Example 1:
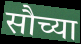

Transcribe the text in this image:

सौच्या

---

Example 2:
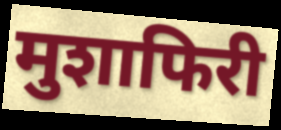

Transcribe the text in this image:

मुशाफिरी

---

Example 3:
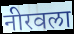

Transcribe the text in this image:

नीरवला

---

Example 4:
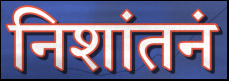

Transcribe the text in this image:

निशांतनं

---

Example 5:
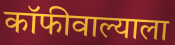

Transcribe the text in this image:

कॉफीवाल्याला